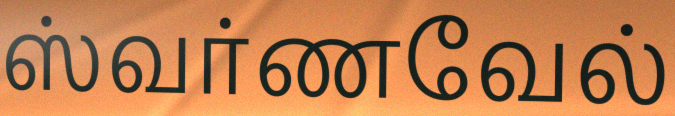
ஸ்வர்ணவேல்